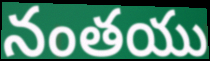
నంతయు